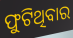
ଫୁଟିଥିବାର